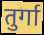
तुर्गा